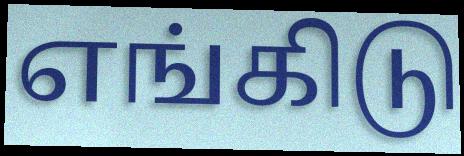
எங்கிடு